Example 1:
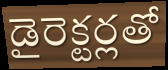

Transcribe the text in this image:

డైరెక్టర్లతో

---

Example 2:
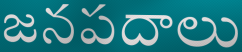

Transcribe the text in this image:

జనపదాలు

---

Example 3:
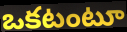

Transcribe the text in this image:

ఒకటంటూ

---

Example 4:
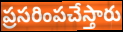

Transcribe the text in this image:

ప్రసరింపచేస్తారు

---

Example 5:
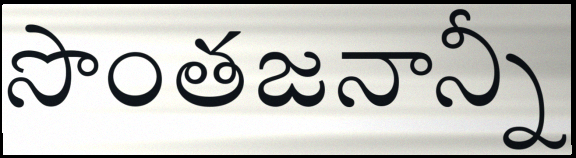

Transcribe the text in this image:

సొంతజనాన్నీ